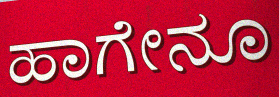
ಹಾಗೇನೂ